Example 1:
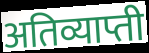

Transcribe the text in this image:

अतिव्याप्ती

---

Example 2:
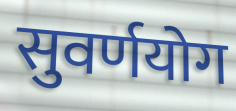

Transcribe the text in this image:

सुवर्णयोग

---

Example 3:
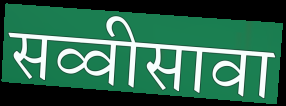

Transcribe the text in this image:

सव्वीसावा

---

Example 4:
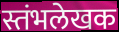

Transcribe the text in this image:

स्तंभलेखक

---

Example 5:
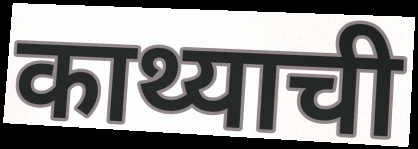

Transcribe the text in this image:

काथ्याची